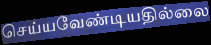
செய்யவேண்டியதில்லை